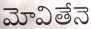
మోవితేనె